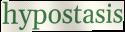
hypostasis